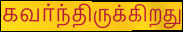
கவர்ந்திருக்கிறது